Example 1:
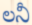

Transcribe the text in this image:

లనీ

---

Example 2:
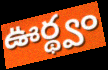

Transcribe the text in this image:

ఊర్థ్వం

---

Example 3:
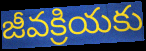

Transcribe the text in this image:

జీవక్రియకు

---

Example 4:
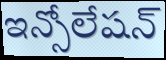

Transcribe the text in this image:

ఇన్సోలేషన్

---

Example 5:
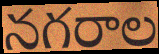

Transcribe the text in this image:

నగరాల